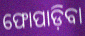
ଫୋପାଡ଼ିବା